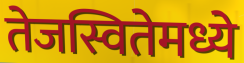
तेजस्वितेमध्ये